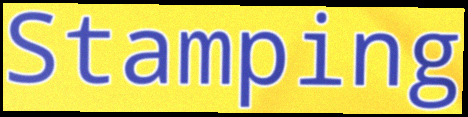
Stamping